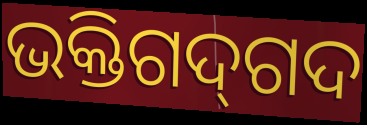
ଭକ୍ତିଗଦ୍‌ଗଦ